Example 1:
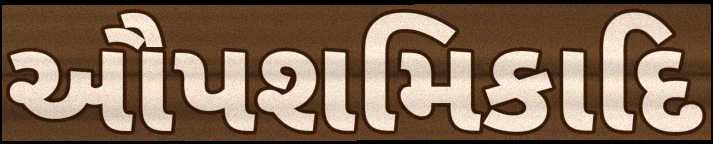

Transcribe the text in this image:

ઔપશમિકાદિ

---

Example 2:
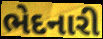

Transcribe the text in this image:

ભેદનારી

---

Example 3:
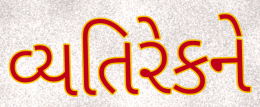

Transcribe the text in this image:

વ્યતિરેકને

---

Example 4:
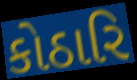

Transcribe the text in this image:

કોઠારિ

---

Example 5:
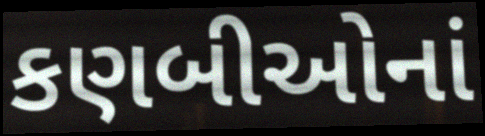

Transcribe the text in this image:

કણબીઓનાં